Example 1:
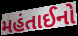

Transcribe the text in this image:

મહંતાઈનો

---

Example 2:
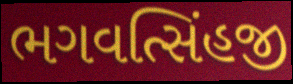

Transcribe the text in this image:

ભગવત્સિંહજી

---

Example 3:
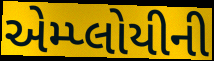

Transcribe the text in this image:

એમ્પ્લોયીની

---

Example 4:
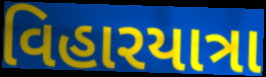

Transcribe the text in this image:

વિહારયાત્રા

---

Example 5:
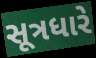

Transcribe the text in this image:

સૂત્રધારે